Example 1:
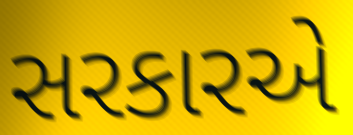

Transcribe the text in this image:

સરકારએ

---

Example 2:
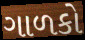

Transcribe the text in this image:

ગાળકો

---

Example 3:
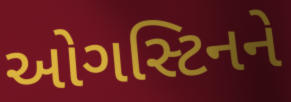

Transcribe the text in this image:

ઓગસ્ટિનને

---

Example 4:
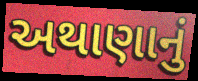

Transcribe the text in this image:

અથાણાનું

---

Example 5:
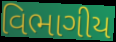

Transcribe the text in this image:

વિભાગીય